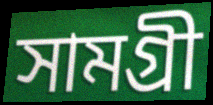
সামগ্রী